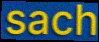
sach